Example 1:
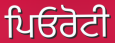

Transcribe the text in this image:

ਪਿਓਰੋਟੀ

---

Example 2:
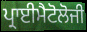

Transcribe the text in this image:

ਪ੍ਰਾਈਮੈਟੋਲੋਜੀ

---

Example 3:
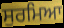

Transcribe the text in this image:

ਸੁਰਮਿਆ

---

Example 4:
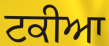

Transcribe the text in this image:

ਟਕੀਆ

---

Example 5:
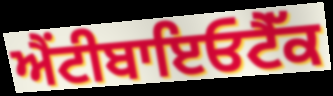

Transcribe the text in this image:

ਐਂਟੀਬਾਇਓਟੈੱਕ